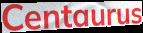
Centaurus